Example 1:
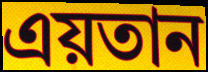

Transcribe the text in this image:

এয়তান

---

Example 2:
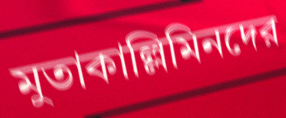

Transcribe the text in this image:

মুতাকাল্লিমিনদের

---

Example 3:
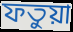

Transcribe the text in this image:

ফতুয়া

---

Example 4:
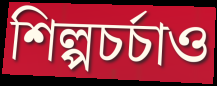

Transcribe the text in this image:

শিল্পচর্চাও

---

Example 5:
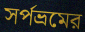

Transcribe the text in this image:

সর্পভ্রমের